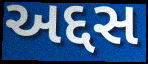
અદ્દસ